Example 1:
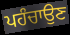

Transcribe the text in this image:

ਪਹੰਚਾਉਣ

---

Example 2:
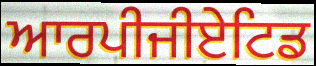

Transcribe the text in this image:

ਆਰਪੀਜੀਏਟਿਡ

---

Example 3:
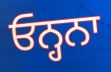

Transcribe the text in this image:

ਓਨ੍ਹਨਾ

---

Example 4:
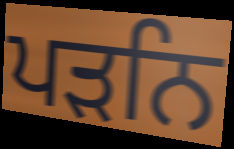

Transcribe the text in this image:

ਪੜਨਿ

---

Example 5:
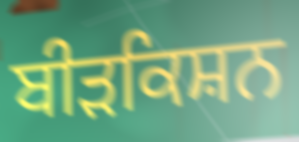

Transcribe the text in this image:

ਬੀੜਕਿਸ਼ਨ